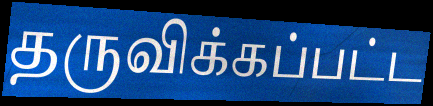
தருவிக்கப்பட்ட